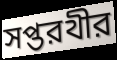
সপ্তরথীর